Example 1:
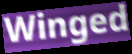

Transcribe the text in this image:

Winged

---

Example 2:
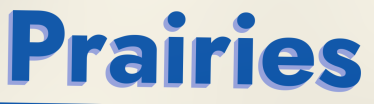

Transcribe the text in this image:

Prairies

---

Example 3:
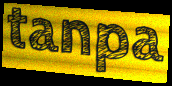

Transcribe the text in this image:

tanpa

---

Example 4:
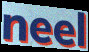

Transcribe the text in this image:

neel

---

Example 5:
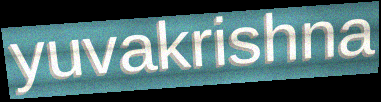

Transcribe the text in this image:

yuvakrishna